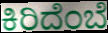
ಕಿರಿದೆಂಬೆ